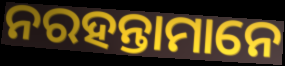
ନରହନ୍ତାମାନେ